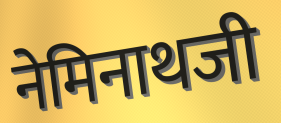
नेमिनाथजी